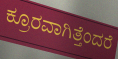
ಕ್ರೂರವಾಗಿತ್ತೆಂದರೆ